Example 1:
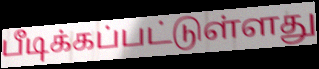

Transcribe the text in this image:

பீடிக்கப்பட்டுள்ளது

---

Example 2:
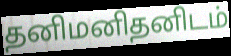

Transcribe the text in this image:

தனிமனிதனிடம்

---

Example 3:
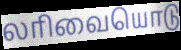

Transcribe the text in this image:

லரிவையொடு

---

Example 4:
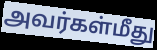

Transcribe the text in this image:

அவர்கள்மீது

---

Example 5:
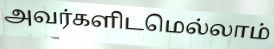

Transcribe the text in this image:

அவர்களிடமெல்லாம்